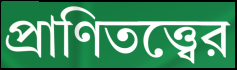
প্রাণিতত্ত্বের